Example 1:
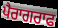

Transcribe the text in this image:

ਪੈਰਾਗਰਾਫ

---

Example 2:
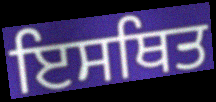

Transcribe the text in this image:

ਇਸਥਿਤ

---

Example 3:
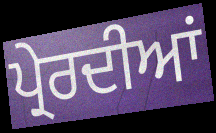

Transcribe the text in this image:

ਪ੍ਰੇਰਦੀਆਂ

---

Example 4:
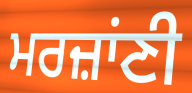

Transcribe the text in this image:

ਮਰਜ਼ਾਂਣੀ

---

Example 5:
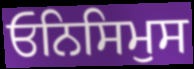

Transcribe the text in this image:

ਓਨਿਸਿਮੁਸ